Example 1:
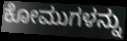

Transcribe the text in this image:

ಕೋಮುಗಳನ್ನು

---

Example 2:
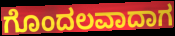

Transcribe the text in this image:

ಗೊಂದಲವಾದಾಗ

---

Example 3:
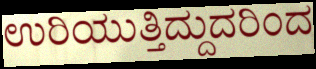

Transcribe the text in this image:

ಉರಿಯುತ್ತಿದ್ದುದರಿಂದ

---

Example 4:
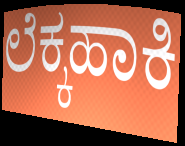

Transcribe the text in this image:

ಲೆಕ್ಕಹಾಕಿ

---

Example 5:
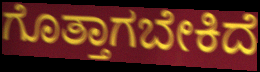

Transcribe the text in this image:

ಗೊತ್ತಾಗಬೇಕಿದೆ